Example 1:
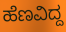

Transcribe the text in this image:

ಹೆಣವಿದ್ದ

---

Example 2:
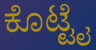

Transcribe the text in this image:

ಕೊಟ್ಟೈ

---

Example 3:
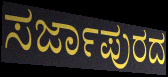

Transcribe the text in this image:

ಸರ್ಜಾಪುರದ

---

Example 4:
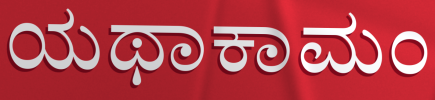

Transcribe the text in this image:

ಯಥಾಕಾಮಂ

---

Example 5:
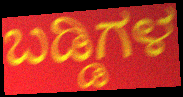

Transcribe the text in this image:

ಬಡ್ಡಿಗಳ